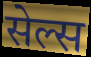
सेल्स